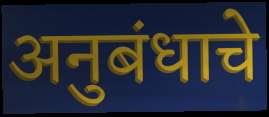
अनुबंधाचे